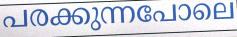
പരക്കുന്നപോലെ